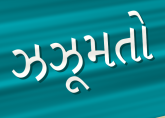
ઝઝૂમતો